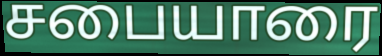
சபையாரை